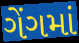
ગેંગમાં